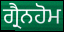
ਗ੍ਰੈਨਹੋਮ